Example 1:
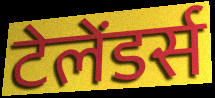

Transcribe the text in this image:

टेलेंडर्स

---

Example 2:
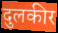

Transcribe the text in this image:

दुलकीर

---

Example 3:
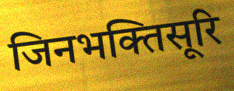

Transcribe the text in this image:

जिनभक्तिसूरि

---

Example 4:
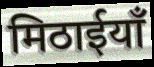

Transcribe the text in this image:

मिठाईयाँ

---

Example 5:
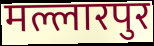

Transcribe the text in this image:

मल्लारपुर